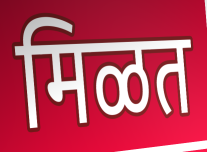
मिळत